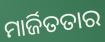
ମାର୍ଜିତତାର